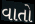
વાતો